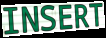
INSERT